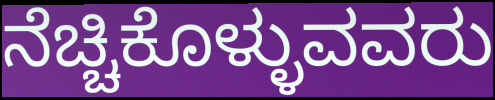
ನೆಚ್ಚಿಕೊಳ್ಳುವವರು